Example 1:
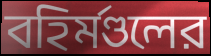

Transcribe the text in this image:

বহির্মণ্ডলের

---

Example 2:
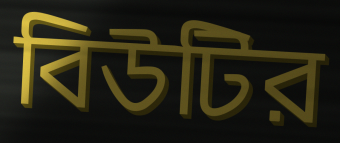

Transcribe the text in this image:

বিউটির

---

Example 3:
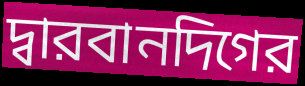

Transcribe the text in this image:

দ্বারবানদিগের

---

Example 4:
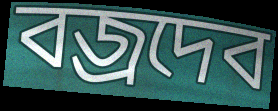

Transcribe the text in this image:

বজ্রদেব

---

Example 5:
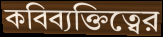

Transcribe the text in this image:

কবিব্যক্তিত্বের